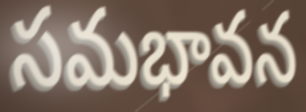
సమభావన